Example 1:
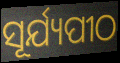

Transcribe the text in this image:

ସୂର୍ଯ୍ୟପୀଠ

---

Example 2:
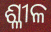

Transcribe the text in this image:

ଶ୍ଳୀଳ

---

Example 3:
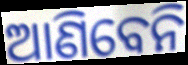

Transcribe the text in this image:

ଆଣିବେନି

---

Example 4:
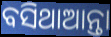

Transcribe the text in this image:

ବସିଥାଆନ୍ତା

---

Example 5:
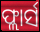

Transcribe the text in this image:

ଫ୍ଲାର୍ସ